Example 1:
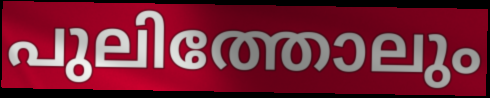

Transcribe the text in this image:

പുലിത്തോലും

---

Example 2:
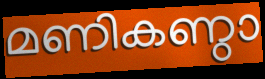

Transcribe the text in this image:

മണികണ്ഠാ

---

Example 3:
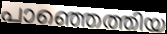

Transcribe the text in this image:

പാഞ്ഞെത്തിയ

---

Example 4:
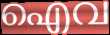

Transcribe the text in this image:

ഐവ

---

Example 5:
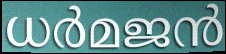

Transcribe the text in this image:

ധർമജൻ